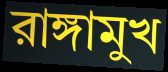
রাঙ্গামুখ